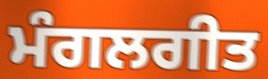
ਮੰਗਲਗੀਤ